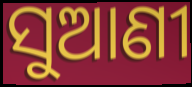
ସୁଆଣୀ